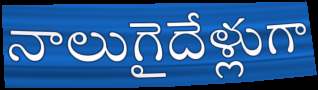
నాలుగైదేళ్లుగా